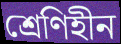
শ্রেণিহীন